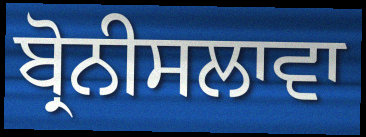
ਬ੍ਰੋਨੀਸਲਾਵਾ